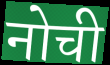
नोची